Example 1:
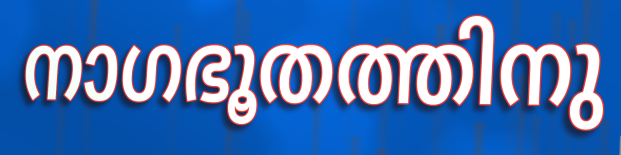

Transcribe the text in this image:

നാഗഭൂതത്തിനു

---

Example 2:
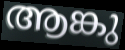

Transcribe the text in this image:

ആങ്കു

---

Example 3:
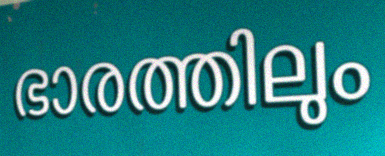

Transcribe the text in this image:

ഭാരത്തിലും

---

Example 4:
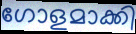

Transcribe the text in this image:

ഗോളമാക്കി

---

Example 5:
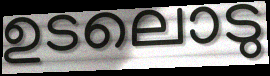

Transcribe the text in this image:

ഉടലൊടു